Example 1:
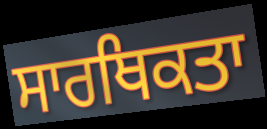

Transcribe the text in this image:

ਸਾਰਥਿਕਤਾ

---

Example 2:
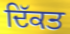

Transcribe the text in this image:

ਦਿੱਕਤ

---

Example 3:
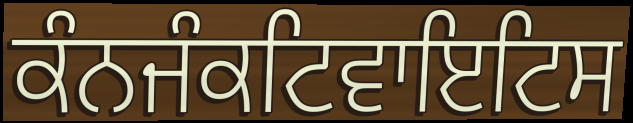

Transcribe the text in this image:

ਕੰਨਜੰਕਟਿਵਾਇਟਿਸ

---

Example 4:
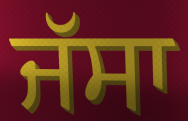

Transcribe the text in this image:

ਜੱਸਾ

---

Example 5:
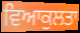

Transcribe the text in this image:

ਵਿਆਕੁਲਤਾ